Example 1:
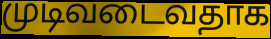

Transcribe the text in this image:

முடிவடைவதாக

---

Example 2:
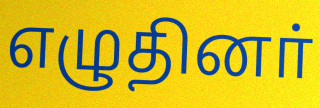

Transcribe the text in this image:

எழுதினர்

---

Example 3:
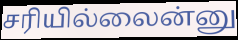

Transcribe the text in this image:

சரியில்லைன்னு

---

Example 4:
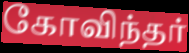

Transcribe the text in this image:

கோவிந்தர்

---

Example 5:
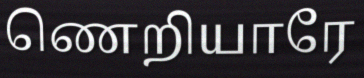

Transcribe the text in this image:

ணெறியாரே